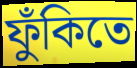
ফুঁকিতে